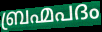
ബ്രഹ്മപദം